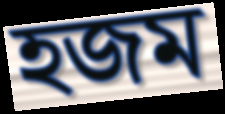
হজম